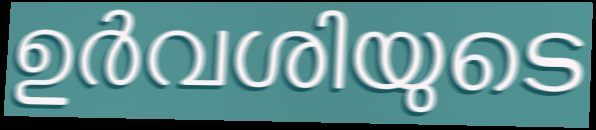
ഉർവശിയുടെ